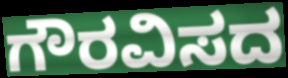
ಗೌರವಿಸದ